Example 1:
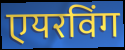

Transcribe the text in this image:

एयरविंग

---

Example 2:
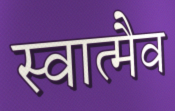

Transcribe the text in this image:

स्वात्मैव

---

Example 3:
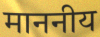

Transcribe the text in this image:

माननीय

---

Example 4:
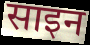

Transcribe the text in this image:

साइन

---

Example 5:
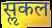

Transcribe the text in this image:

सॢकल